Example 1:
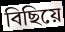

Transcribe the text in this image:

বিছিয়ে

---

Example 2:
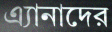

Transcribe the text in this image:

এ্যানাদের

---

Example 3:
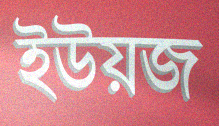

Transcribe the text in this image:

ইউয়জ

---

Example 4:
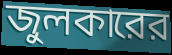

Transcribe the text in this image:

জুলকারের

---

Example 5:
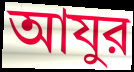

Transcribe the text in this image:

আযুর